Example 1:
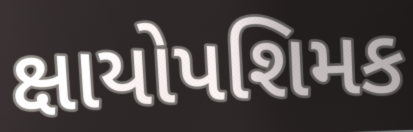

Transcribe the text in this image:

ક્ષાયોપશિમક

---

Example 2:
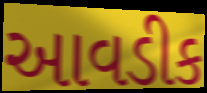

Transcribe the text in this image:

આવડીક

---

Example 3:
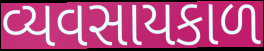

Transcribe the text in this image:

વ્યવસાયકાળ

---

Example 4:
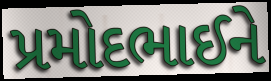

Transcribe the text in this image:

પ્રમોદભાઈને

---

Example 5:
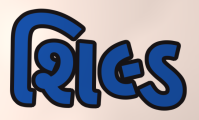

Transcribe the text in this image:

શિલ્ડ